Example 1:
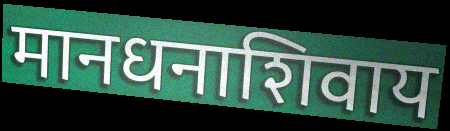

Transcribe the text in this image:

मानधनाशिवाय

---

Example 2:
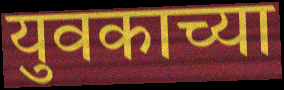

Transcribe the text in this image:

युवकाच्या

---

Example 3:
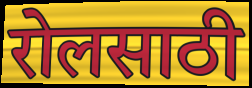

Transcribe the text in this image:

रोलसाठी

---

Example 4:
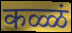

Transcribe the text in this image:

कळ्ळं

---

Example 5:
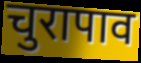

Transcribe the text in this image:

चुरापाव